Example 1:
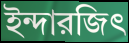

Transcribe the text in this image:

ইন্দারজিৎ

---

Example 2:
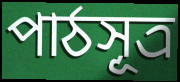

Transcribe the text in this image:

পাঠসূত্র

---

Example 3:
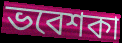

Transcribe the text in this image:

ভবেশকা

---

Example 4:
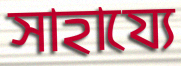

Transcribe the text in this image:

সাহায্যে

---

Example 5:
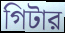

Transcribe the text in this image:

গিটার